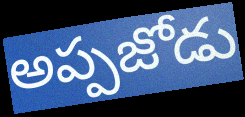
అప్పజోడు